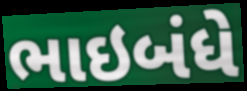
ભાઇબંધે